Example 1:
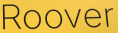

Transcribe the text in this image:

Roover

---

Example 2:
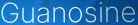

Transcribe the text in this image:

Guanosine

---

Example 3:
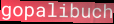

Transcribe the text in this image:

gopalibuch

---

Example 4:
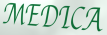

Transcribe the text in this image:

MEDICA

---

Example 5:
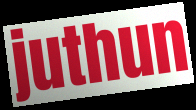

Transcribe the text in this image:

juthun